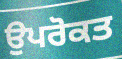
ਉਪਰੋਕਤ